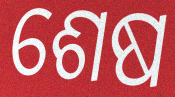
ଶେଷ